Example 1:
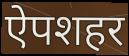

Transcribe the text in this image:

ऐपशहर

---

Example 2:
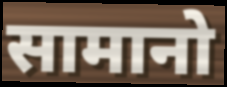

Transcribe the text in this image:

सामानो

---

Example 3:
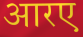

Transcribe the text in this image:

आरए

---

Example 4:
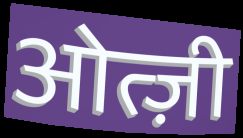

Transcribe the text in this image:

ओत्ज़ी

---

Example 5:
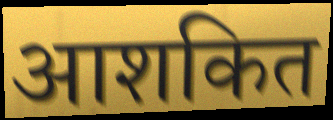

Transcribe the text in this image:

आशकित